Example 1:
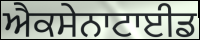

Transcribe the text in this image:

ਐਕਸੇਨਾਟਾਈਡ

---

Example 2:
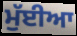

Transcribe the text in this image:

ਮੁੱਈਆ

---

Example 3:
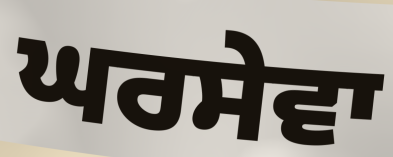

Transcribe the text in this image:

ਘਰਸੇਵਾ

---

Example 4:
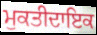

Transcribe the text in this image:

ਮੁਕਤੀਦਾਇਕ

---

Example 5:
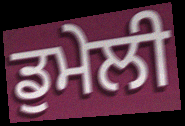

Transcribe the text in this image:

ਡੁਮੇਲੀ